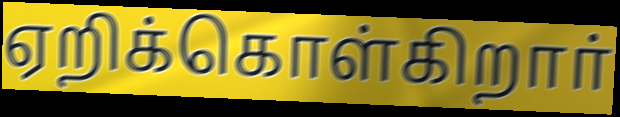
ஏறிக்கொள்கிறார்